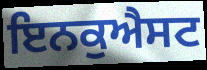
ਇਨਕੁਐਸਟ